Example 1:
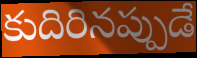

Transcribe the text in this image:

కుదిరినప్పుడే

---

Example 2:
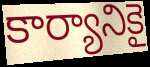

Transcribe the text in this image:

కార్యానికై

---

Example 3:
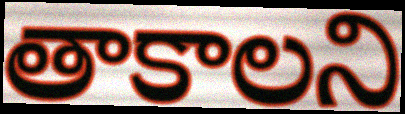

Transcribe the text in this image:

తాకాలని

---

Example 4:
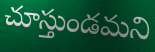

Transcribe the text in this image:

చూస్తుండమని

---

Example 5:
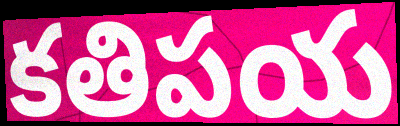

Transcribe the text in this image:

కతిపయ